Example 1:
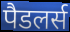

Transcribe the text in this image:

पैडलर्स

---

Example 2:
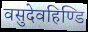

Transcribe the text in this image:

वसुदेवहिण्डि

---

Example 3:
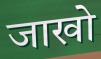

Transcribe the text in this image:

जाखो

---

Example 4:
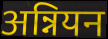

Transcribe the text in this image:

अन्नियन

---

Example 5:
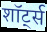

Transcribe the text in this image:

शॉर्ट्स